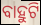
ବାହୁଟି